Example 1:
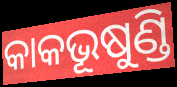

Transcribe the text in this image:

କାକଭୂଷୁଣ୍ଡି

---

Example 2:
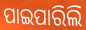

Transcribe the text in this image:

ପାଇପାରିଲି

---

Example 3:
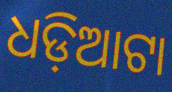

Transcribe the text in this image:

ଧଡ଼ିଆଟା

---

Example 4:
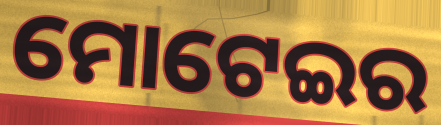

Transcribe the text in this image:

ମୋଟେଇର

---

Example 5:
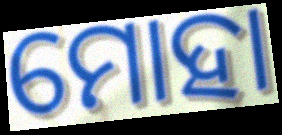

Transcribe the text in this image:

ମୋହା